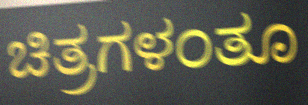
ಚಿತ್ರಗಳಂತೂ